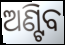
ଅଣ୍ଟିବ